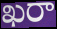
ఖరా